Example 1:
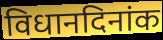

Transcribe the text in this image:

विधानदिनांक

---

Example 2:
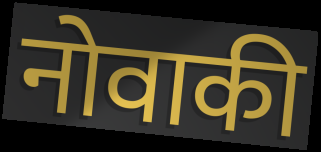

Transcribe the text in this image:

नोवाकी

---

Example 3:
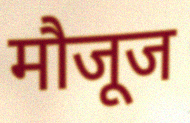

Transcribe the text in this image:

मौजूज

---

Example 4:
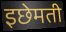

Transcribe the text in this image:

इछेमती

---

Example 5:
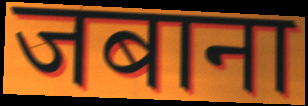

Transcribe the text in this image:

जबाना